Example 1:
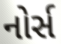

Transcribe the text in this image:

નોર્સ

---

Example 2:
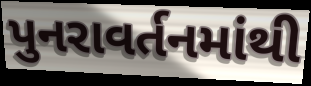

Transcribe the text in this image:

પુનરાવર્તનમાંથી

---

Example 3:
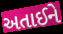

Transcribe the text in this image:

અતાઈને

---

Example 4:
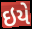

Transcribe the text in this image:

ઇયે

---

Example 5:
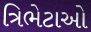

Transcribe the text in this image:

ત્રિભેટાઓ